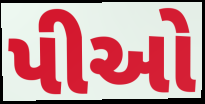
પીઓ